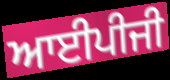
ਆਈਪੀਜੀ